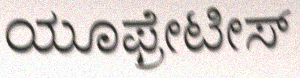
ಯೂಫ್ರೇಟೀಸ್